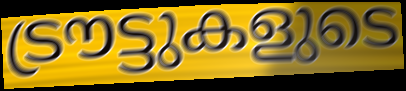
ട്രൗട്ടുകളുടെ